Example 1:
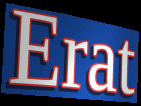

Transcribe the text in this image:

Erat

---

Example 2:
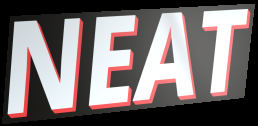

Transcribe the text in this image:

NEAT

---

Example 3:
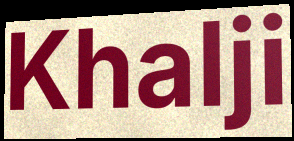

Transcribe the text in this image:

Khalji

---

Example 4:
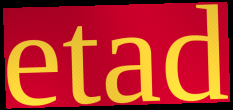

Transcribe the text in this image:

etad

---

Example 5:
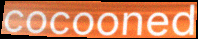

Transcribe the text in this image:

cocooned